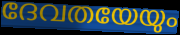
ദേവതയേയും